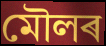
মৌলৰ